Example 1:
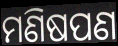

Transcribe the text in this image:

ମଣିଷପଣ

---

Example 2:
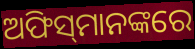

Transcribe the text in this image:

ଅଫିସ୍‌ମାନଙ୍କରେ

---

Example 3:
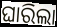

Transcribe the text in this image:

ଘାରିଲା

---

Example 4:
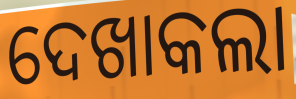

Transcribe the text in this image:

ଦେଖାକଲା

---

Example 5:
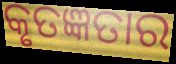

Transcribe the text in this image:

କୃତଜ୍ଞତାର